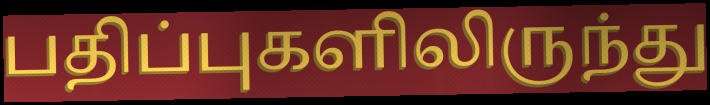
பதிப்புகளிலிருந்து